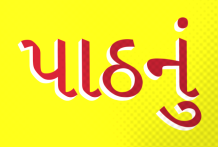
પાઠનું